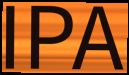
IPA